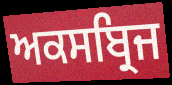
ਅਕਸਬ੍ਰਿਜ